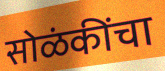
सोळंकींचा